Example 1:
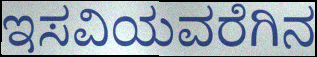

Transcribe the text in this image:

ಇಸವಿಯವರೆಗಿನ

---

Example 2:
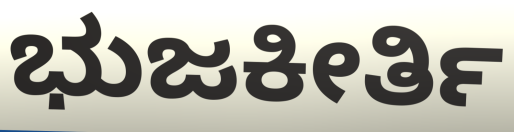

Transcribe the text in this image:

ಭುಜಕೀರ್ತಿ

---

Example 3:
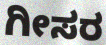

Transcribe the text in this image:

ಗೀಸರ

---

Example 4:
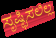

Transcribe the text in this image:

ಸೃಷ್ಟಿಸಲಿಲ್ಲ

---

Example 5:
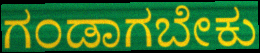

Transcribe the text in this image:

ಗಂಡಾಗಬೇಕು